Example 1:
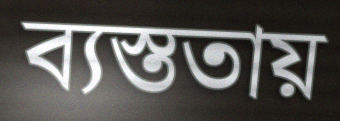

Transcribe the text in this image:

ব্যস্ততায়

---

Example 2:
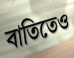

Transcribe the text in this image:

বাতিতেও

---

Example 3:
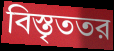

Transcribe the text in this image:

বিস্তৃততর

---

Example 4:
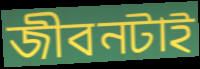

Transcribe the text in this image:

জীবনটাই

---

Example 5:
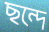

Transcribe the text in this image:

ছন্দে